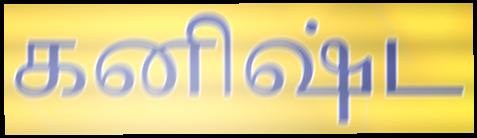
கனிஷ்ட